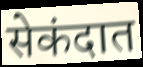
सेकंदात